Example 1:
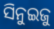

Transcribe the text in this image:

ସିନୁଇଜୁ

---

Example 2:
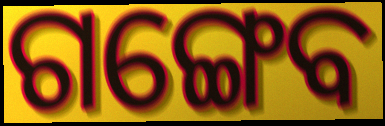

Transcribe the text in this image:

ଗଙ୍ଗେବ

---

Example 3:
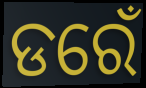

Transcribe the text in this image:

ଡରେଁ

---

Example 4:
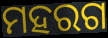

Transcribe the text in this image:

ମହରଗ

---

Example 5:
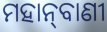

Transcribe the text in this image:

ମହାନ୍‌ବାଣୀ